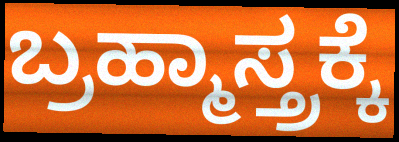
ಬ್ರಹ್ಮಾಸ್ತ್ರಕ್ಕೆ